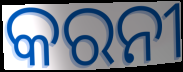
କରନୀ